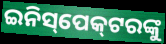
ଇନିସ୍‌ପେକ୍‌ଟରଙ୍କୁ